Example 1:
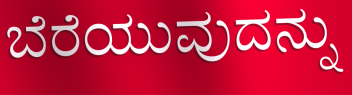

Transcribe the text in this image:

ಬೆರೆಯುವುದನ್ನು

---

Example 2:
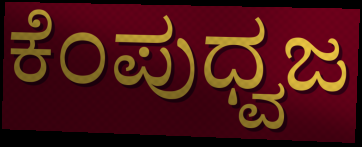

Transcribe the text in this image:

ಕೆಂಪುಧ್ವಜ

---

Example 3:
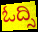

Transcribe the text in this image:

ಓದ್ಸಿ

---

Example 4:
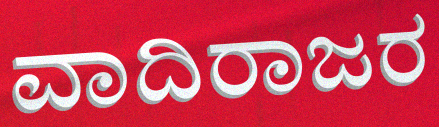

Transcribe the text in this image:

ವಾದಿರಾಜರ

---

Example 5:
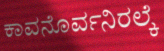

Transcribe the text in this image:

ಕಾವನೊರ್ವನಿರಲ್ಕೆ